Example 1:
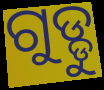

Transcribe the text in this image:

ଗୁଡ୍ଡୁ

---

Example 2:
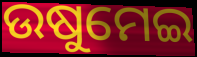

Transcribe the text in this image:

ଉଷୁମେଇ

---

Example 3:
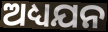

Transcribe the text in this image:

ଅଧ୍ୟଯନ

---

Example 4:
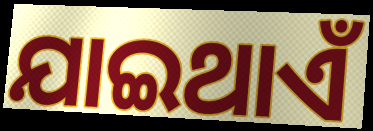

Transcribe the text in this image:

ଯାଇଥାଏଁ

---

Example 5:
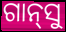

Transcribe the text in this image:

ଗାନ୍‍ସୁ